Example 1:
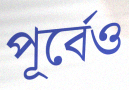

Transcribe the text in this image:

পূর্বেও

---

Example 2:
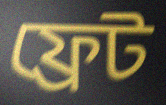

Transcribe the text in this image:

ফ্রেট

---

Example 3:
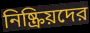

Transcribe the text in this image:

নিষ্ক্রিয়দের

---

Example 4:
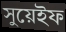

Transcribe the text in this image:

সুয়েইফ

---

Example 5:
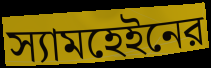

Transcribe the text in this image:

স্যামহেইনের